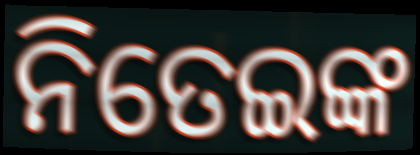
ନିତେଇଙ୍କ